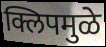
क्लिपमुळे